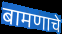
बामणाचे